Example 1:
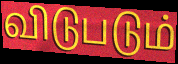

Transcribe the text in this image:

விடுபடும்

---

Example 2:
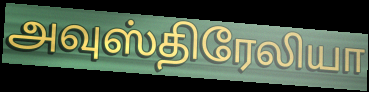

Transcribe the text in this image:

அவுஸ்திரேலியா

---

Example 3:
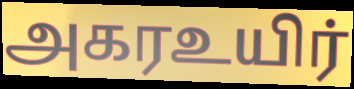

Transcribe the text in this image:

அகரஉயிர்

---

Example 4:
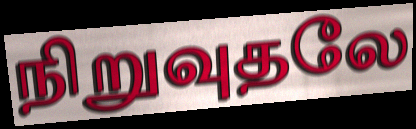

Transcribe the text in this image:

நிறுவுதலே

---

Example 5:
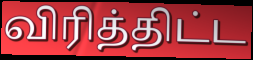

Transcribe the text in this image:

விரித்திட்ட